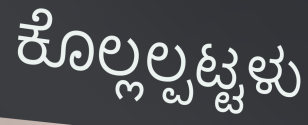
ಕೊಲ್ಲಲ್ಪಟ್ಟಳು